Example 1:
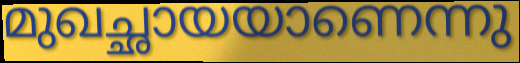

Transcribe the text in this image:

മുഖച്ഛായയാണെന്നു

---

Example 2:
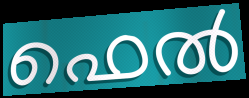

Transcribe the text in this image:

ഫെൽ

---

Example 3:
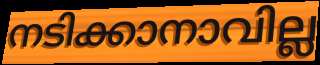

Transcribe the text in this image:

നടിക്കാനാവില്ല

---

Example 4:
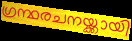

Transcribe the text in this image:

ഗ്രന്ഥരചനയ്ക്കായി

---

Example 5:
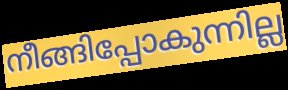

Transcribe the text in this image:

നീങ്ങിപ്പോകുന്നില്ല